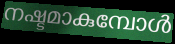
നഷ്ടമാകുമ്പോൾ